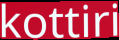
kottiri